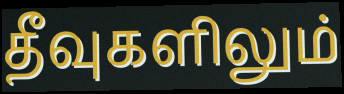
தீவுகளிலும்